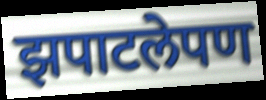
झपाटलेपण